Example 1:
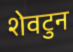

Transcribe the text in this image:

शेवटुन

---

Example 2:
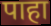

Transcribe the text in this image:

पाहा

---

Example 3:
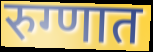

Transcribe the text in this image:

रुग्णात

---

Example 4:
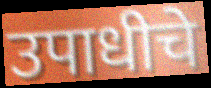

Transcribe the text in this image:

उपाधीचे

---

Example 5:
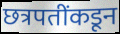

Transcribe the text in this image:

छत्रपतींकडून